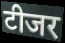
टीजर